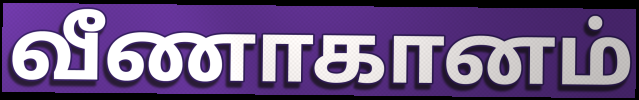
வீணாகானம்